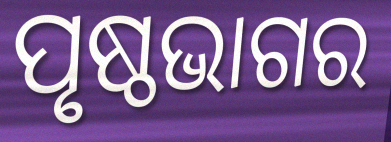
ପୃଷ୍ଠଭାଗର